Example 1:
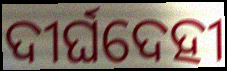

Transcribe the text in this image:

ଦୀର୍ଘଦେହୀ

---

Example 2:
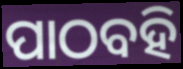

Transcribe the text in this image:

ପାଠବହି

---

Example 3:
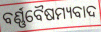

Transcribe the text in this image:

ବର୍ଣ୍ଣବୈଷମ୍ୟବାଦ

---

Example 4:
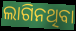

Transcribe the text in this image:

ଲାଗିନଥିବା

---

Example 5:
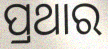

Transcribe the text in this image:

ପ୍ରଥାର